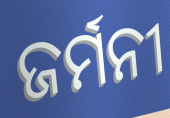
ଜର୍ମନୀ